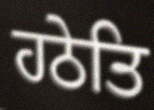
ਹਠੇਤਿ